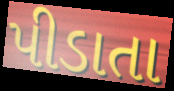
પીડાતા